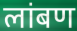
लांबण